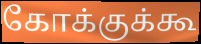
கோக்குக்கூ